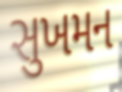
સુખમન